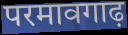
परमावगाढ़